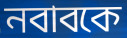
নবাবকে